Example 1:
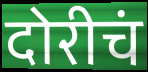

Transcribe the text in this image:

दोरीचं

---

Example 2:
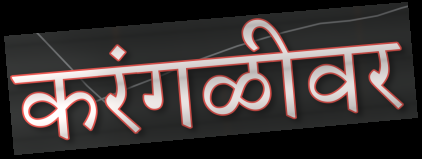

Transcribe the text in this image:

करंगळीवर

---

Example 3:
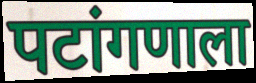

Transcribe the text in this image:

पटांगणाला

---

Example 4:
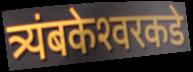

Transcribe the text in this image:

त्र्यंबकेश्वरकडे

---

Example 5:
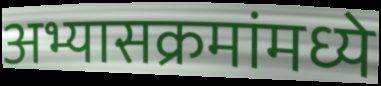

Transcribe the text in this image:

अभ्यासक्रमांमध्ये